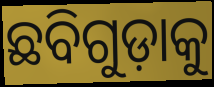
ଛବିଗୁଡ଼ାକୁ